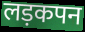
लड़कपन